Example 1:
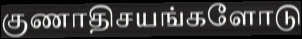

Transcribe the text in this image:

குணாதிசயங்களோடு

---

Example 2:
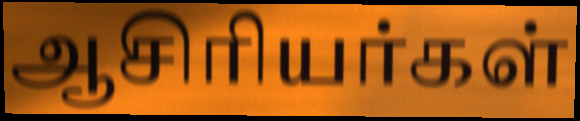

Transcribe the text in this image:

ஆசிரியர்கள்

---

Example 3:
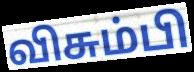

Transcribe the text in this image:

விசும்பி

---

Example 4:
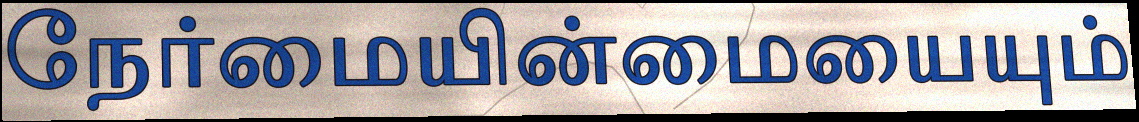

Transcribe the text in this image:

நேர்மையின்மையையும்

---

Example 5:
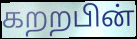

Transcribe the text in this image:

கறறபின்